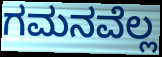
ಗಮನವೆಲ್ಲ